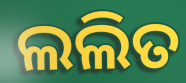
ଲଲିତ